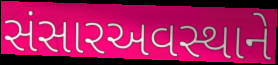
સંસારઅવસ્થાને